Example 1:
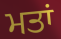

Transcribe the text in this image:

ਮਤਾਂ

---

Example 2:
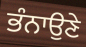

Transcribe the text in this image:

ਭੰਨਾਉਣੇ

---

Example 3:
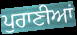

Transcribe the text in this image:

ਪੁਰਾਣੀਆਂ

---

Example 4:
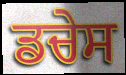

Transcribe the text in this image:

ਡਚੇਸ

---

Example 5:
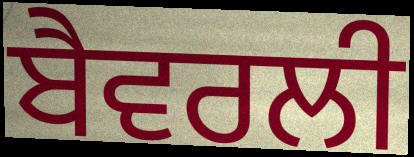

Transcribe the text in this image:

ਬੈਵਰਲੀ